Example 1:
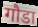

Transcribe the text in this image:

गौडा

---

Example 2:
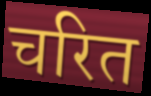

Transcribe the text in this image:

चरित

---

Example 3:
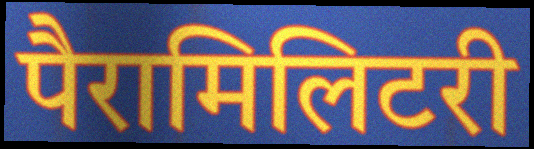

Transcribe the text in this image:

पैरामिलिटरी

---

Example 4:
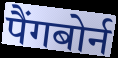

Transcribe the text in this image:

पैंगबोर्न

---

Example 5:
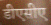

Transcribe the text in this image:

डीएसीए